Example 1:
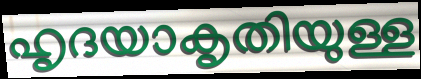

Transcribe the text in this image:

ഹൃദയാകൃതിയുള്ള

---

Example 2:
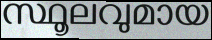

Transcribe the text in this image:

സ്ഥൂലവുമായ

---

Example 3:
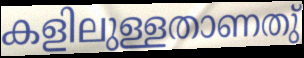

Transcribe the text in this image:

കളിലുള്ളതാണതു്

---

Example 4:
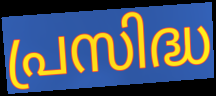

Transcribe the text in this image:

പ്രസിദ്ധ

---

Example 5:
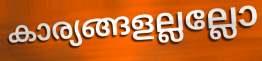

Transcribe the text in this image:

കാര്യങ്ങളല്ലല്ലോ